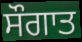
ਸੌਗਾਤ